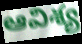
ఆవిశ్య